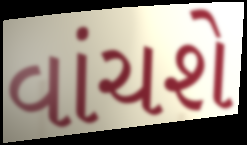
વાંચશે